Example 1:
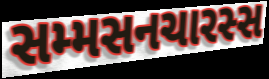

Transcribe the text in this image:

સમ્મસનચારસ્સ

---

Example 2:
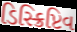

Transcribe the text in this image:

ડિસ્ક્રિપ્ટિવ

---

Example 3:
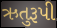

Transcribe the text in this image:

ઋતુરૂપી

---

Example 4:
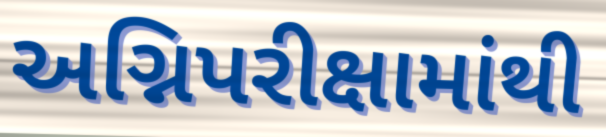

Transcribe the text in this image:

અગ્નિપરીક્ષામાંથી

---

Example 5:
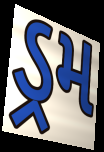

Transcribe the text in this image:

ડ્રમ